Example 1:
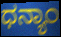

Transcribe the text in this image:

ಧನ್ಯಾಂ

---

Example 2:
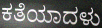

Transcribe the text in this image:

ಕತೆಯಾದಳು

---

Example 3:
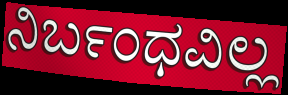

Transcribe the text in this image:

ನಿರ್ಬಂಧವಿಲ್ಲ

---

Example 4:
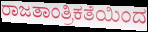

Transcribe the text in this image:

ರಾಜತಾಂತ್ರಿಕತೆಯಿಂದ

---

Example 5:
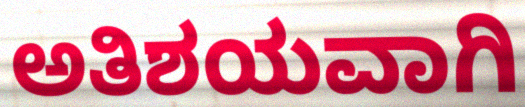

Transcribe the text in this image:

ಅತಿಶಯವಾಗಿ